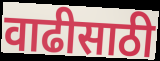
वाढीसाठी